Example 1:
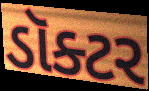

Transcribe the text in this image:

ડૉક્ટર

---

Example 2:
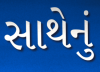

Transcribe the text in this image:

સાથેનું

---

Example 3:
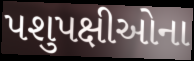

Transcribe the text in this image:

પશુપક્ષીઓના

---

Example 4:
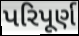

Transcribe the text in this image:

પરિપૂર્ણ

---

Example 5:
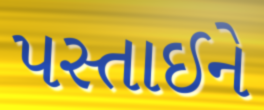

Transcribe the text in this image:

પસ્તાઈને